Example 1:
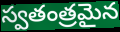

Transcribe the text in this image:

స్వతంత్రమైన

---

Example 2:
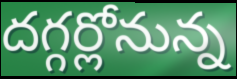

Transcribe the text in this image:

దగ్గర్లోనున్న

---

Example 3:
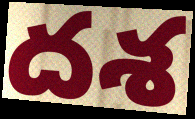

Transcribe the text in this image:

దశ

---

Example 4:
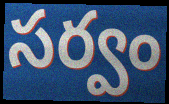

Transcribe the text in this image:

సర్వం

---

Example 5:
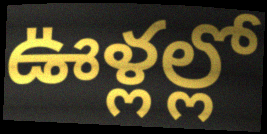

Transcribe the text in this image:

ఊళ్లల్లో